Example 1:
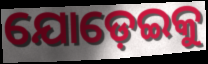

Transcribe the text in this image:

ଯୋଡ଼େଇକୁ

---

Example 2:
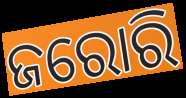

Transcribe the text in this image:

ଜରୋରି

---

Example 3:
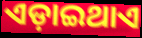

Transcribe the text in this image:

ଏଡ଼ାଇଥାଏ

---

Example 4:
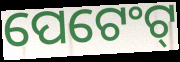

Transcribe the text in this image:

ପେଟେଂଟ୍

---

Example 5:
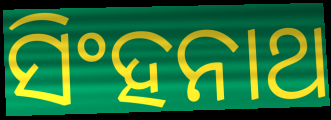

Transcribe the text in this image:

ସିଂହନାଥ